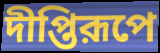
দীপ্তিরূপে